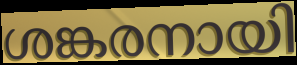
ശങ്കരനായി